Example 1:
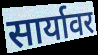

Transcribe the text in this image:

सार्यावर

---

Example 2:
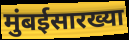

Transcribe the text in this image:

मुंबईसारख्या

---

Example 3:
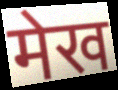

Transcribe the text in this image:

मेख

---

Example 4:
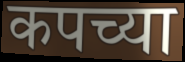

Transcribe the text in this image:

कपच्या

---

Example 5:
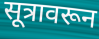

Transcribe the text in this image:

सूत्रावरून